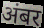
अंबर